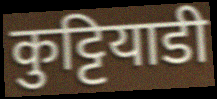
कुट्टियाडी